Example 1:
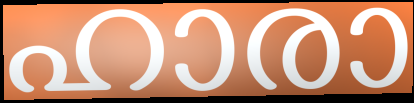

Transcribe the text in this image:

ഹാരാ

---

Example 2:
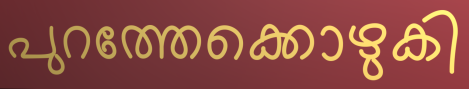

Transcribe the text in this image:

പുറത്തേക്കൊഴുകി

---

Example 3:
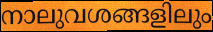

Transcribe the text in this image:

നാലുവശങ്ങളിലും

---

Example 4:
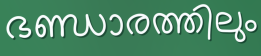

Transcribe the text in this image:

ഭണ്ഡാരത്തിലും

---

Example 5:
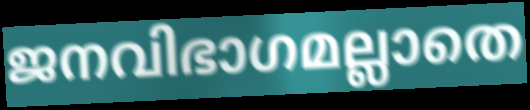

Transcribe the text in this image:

ജനവിഭാഗമല്ലാതെ